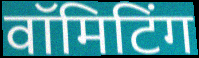
वॉमिटिंग